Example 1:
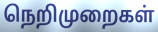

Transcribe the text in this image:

நெறிமுறைகள்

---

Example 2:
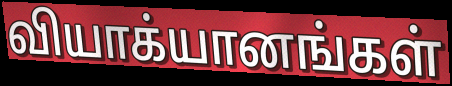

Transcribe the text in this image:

வியாக்யானங்கள்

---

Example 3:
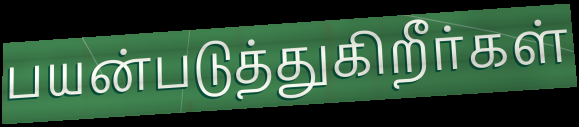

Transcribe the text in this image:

பயன்படுத்துகிறீர்கள்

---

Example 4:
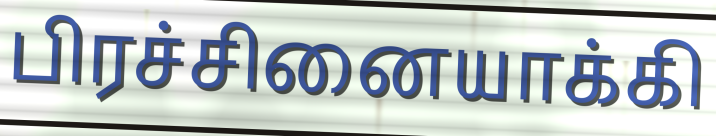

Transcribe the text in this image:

பிரச்சினையாக்கி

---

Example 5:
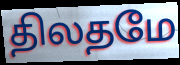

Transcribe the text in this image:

திலதமே